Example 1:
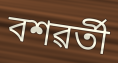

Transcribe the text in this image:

বশৱৰ্তী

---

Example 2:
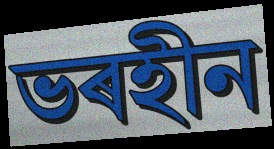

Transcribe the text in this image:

ভৰহীন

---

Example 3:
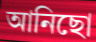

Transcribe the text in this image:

আনিছো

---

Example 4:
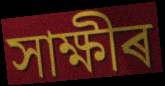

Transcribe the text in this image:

সাক্ষীৰ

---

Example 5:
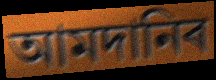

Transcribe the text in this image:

আমদানিৰ